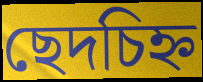
ছেদচিহ্ন